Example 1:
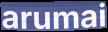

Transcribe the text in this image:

arumai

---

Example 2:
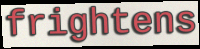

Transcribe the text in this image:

frightens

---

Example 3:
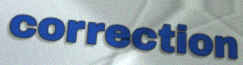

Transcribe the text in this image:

correction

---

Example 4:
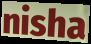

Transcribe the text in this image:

nisha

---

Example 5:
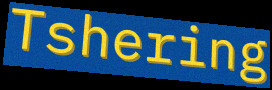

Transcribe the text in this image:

Tshering